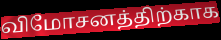
விமோசனத்திற்காக